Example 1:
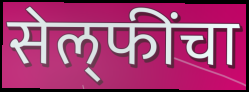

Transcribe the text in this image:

सेल्फींचा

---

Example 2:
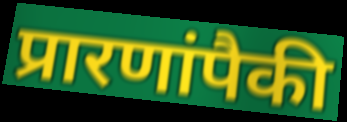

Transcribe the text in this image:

प्रारणांपैकी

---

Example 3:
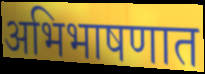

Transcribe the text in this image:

अभिभाषणात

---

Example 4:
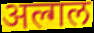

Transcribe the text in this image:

अल्गल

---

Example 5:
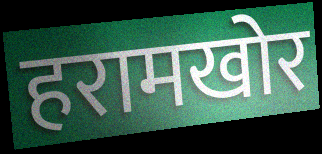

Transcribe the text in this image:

हरामखोर